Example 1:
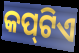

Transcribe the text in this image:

କପ୍‍ଟିଏ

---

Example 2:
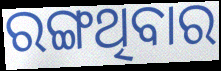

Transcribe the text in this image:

ରଙ୍ଗଥିବାର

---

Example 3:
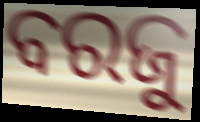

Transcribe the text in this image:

ବରଜୁ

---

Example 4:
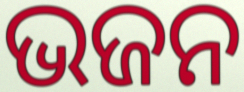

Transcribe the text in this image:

ଭଜନ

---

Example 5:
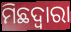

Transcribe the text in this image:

ମିଛଦ୍ଵାରା